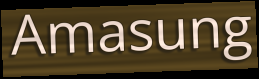
Amasung